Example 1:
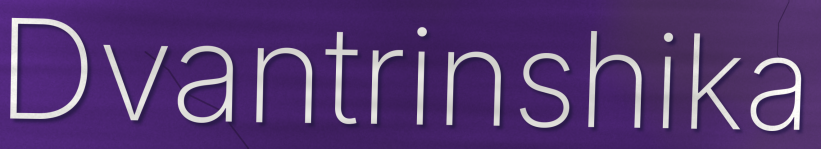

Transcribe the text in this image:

Dvantrinshika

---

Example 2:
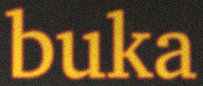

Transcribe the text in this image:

buka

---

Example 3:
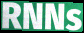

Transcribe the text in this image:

RNNs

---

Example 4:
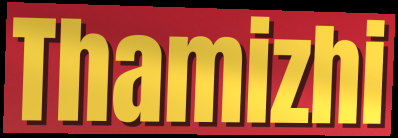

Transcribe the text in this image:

Thamizhi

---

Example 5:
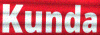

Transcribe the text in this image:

Kunda